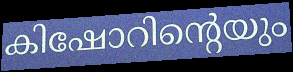
കിഷോറിന്റെയും